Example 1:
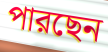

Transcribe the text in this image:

পারছেন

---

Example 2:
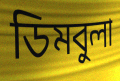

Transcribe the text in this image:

ডিমবুলা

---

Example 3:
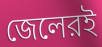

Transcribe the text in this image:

জেলেরই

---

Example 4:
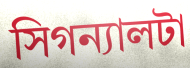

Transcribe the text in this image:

সিগন্যালটা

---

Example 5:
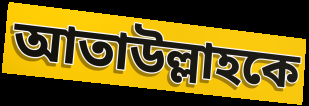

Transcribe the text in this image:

আতাউল্লাহকে